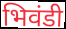
भिवंडी